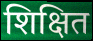
शिक्षित